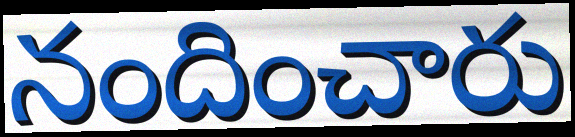
నందించారు